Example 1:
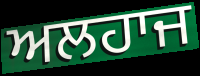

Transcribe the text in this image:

ਅਲਹਾਜ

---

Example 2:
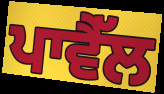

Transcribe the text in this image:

ਪਾਵੈੱਲ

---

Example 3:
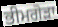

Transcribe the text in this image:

ਭੀਮਗੋੜਾ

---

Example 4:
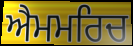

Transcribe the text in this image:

ਐਮਮਰਿਚ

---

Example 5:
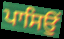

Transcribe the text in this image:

ਪਾਸਿਉਂ